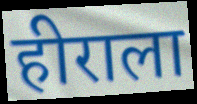
हीराला